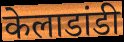
केलाडांडी